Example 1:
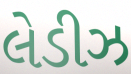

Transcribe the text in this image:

લેડીઝ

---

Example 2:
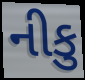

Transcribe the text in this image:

નીકુ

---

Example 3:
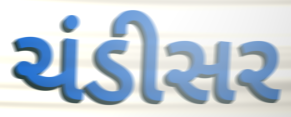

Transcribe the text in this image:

ચંડીસર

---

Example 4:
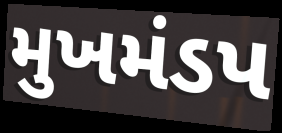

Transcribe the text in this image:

મુખમંડપ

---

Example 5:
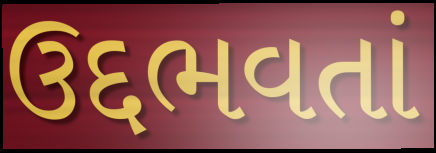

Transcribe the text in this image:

ઉદ્દભવતાં